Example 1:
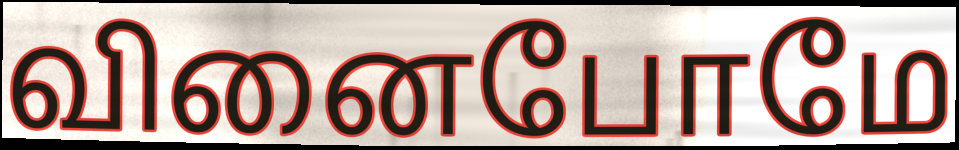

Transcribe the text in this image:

வினைபோமே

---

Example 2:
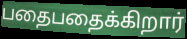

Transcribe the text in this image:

பதைபதைக்கிறார்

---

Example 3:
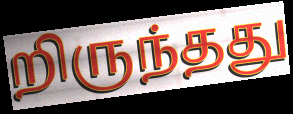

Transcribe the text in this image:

றிருந்தது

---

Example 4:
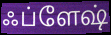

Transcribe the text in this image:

ஃப்ளேஷ்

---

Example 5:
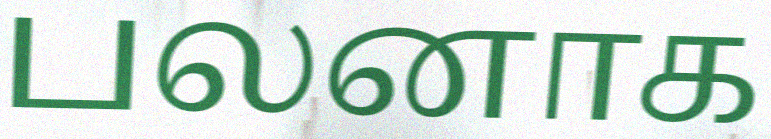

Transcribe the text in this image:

பலனாக